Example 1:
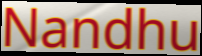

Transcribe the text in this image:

Nandhu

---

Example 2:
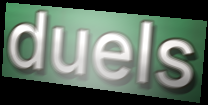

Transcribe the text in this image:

duels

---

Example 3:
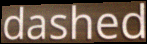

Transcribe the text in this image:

dashed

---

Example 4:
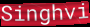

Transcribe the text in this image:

Singhvi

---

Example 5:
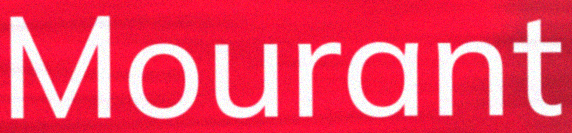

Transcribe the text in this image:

Mourant